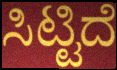
ಸಿಟ್ಟಿದೆ